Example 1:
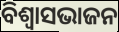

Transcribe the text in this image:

ବିଶ୍ୱାସଭାଜନ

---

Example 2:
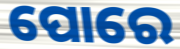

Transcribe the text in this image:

ପୋରେ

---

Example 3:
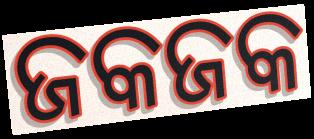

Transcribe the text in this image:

ଜକଜକ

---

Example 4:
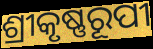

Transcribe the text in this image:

ଶ୍ରୀକୃଷ୍ଣରୂପୀ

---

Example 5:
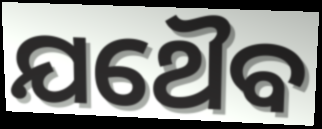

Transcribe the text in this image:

ଯଥୈବ